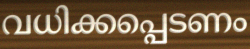
വധിക്കപ്പെടണം